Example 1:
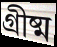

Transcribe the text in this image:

গ্ৰীষ্ম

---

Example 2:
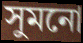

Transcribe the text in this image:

সুমনো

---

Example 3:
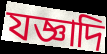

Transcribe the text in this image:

যজ্ঞাদি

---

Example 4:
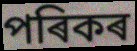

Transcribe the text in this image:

পৰিকৰ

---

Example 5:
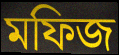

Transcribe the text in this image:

মফিজ